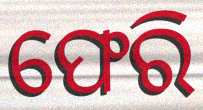
ଫେରି